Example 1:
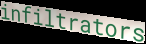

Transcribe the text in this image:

infiltrators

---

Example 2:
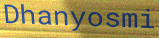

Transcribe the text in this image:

Dhanyosmi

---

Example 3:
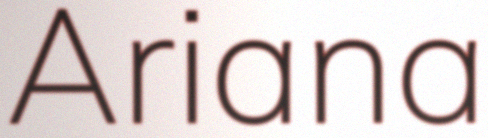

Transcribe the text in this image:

Ariana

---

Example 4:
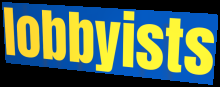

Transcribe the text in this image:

lobbyists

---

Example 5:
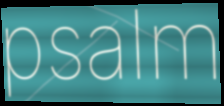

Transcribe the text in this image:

psalm